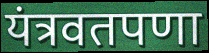
यंत्रवतपणा